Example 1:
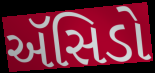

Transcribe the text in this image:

ઍસિડો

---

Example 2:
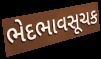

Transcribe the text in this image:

ભેદભાવસૂચક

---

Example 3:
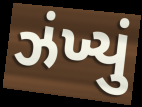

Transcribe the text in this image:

ઝંખ્યું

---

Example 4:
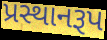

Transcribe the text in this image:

પ્રસ્થાનરૂપ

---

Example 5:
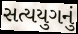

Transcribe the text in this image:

સત્યયુગનું